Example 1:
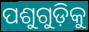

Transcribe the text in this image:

ପଶୁଗୁଡ଼ିକୁ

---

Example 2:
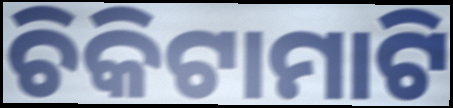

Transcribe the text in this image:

ଚିକିଟାମାଟି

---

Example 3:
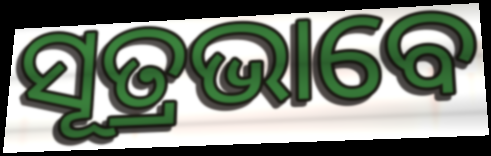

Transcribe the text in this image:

ସୂତ୍ରଭାବେ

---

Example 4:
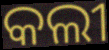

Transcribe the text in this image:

କଲୀ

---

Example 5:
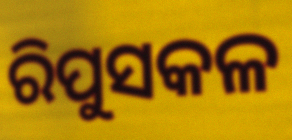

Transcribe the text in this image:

ରିପୁସକଳ